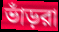
ভাঁড়রা